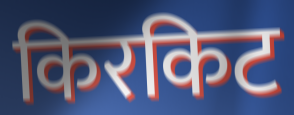
किरकिट